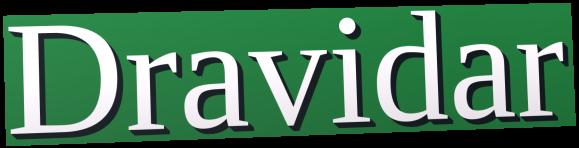
Dravidar